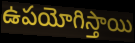
ఉపయోగిస్తాయి